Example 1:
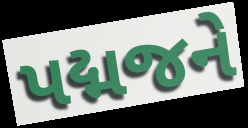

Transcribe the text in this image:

પદ્મજને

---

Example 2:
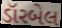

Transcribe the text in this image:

ડૉરબેલ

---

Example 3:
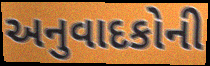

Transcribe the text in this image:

અનુવાદકોની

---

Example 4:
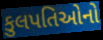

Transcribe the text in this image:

કુલપતિઓનો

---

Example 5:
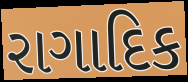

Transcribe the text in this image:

રાગાદિક